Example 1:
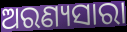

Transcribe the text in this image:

ଅରଣ୍ୟସାରା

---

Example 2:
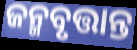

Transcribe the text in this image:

ଜନ୍ମବୃତ୍ତାନ୍ତ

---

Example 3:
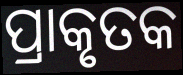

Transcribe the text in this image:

ପ୍ରାକୃତକ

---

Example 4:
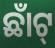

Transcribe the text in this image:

ଛାଁଟ୍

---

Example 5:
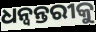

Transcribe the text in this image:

ଧନ୍ବନ୍ତରୀକୁ